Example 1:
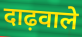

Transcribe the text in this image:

दाढ़वाले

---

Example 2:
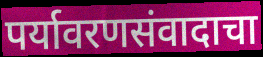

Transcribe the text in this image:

पर्यावरणसंवादाचा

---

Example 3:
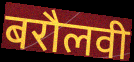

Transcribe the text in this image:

बरौलवी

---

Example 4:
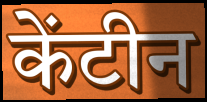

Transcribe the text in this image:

केंटीन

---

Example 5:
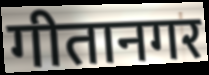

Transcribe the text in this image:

गीतानगर